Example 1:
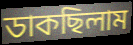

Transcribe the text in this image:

ডাকছিলাম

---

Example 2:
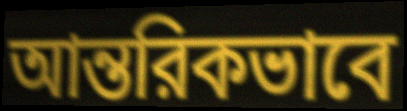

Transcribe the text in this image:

আন্তরিকভাবে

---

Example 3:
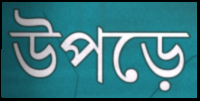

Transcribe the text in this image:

উপড়ে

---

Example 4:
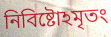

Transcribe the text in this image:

নিবিষ্টোঽমৃতং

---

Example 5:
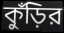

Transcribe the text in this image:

কুঁড়ির